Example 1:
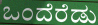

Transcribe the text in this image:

ಒಂದೆರೆಡು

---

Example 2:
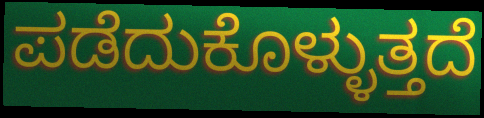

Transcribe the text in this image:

ಪಡೆದುಕೊಳ್ಳುತ್ತದೆ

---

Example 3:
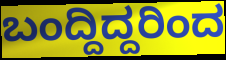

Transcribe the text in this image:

ಬಂದ್ದಿದ್ದರಿಂದ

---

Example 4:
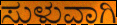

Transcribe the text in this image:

ಸುಳುವಾಗಿ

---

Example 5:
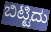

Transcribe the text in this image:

ಬಿಟ್ಟಿದು